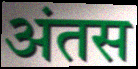
अंतस